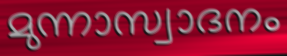
മുന്നാസ്വാദനം